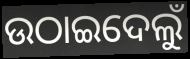
ଉଠାଇଦେଲୁଁ